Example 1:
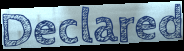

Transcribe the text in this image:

Declared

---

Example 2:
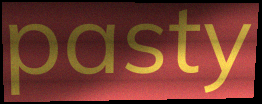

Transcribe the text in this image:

pasty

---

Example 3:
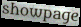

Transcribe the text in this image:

showpage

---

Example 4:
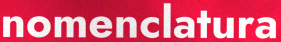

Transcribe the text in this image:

nomenclatura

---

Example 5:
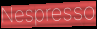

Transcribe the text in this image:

Nespresso